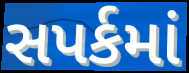
સપર્કમાં